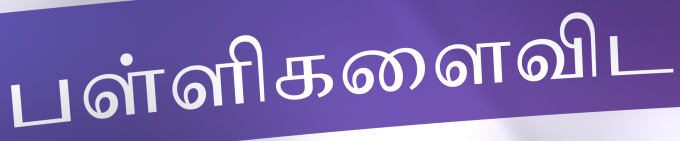
பள்ளிகளைவிட